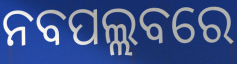
ନବପଲ୍ଲବରେ